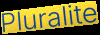
Pluralite